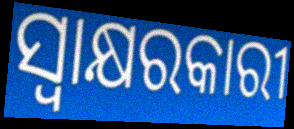
ସ୍ୱାକ୍ଷରକାରୀ